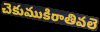
చెకుముకిరాతివలె